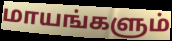
மாயங்களும்